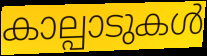
കാല്പാടുകൾ